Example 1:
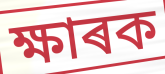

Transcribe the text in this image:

ক্ষাৰক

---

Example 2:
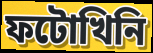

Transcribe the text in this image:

ফটোখিনি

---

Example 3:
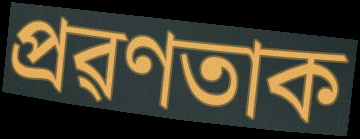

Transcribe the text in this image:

প্ৰৱণতাক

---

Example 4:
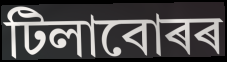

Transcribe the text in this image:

টিলাবোৰৰ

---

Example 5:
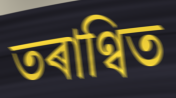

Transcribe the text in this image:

তৰাণ্বিত